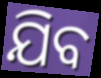
ଯିବ